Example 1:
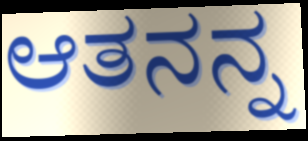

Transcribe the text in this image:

ಆತನನ್ನ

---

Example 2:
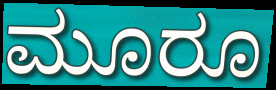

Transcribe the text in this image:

ಮೂರೂ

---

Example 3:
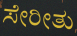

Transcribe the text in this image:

ಸೇರೀತು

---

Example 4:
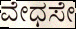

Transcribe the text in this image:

ವೇಧಸೇ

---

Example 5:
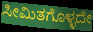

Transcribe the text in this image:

ಸೀಮಿತಗೊಳ್ಳದೇ